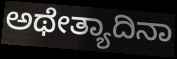
ಅಥೇತ್ಯಾದಿನಾ